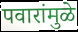
पवारांमुळे